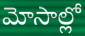
మోసాల్లో